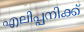
എലിപ്പനിക്ക്